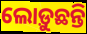
ଲୋଡ଼ୁଛନ୍ତି